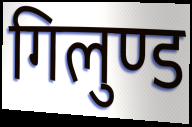
गिलुण्ड